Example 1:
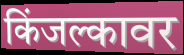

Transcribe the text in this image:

किंजल्कावर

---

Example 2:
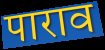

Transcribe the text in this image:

पाराव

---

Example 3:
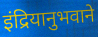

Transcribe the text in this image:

इंद्रियानुभवाने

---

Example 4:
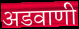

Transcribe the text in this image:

अडवाणी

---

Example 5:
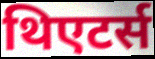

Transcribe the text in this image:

थिएटर्स